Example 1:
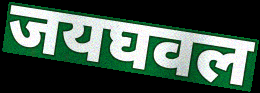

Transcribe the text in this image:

जयघवल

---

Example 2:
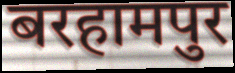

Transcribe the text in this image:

बरहामपुर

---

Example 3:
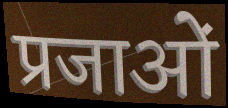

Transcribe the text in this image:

प्रजाओं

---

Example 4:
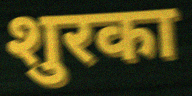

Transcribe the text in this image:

शुरका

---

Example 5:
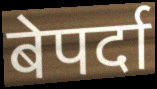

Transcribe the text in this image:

बेपर्दा